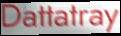
Dattatray